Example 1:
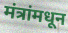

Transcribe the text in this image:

मंत्रांमधून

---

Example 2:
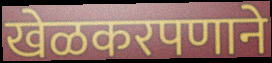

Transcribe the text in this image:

खेळकरपणाने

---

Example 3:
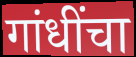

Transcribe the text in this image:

गांधींचा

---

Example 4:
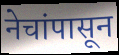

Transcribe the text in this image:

नेचांपासून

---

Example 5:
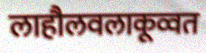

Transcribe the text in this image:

लाहौलवलाकूव्वत